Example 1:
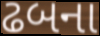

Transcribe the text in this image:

ઢબના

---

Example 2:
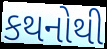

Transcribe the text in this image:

કથનોથી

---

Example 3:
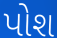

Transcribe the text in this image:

પોશ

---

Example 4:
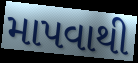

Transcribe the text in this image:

માપવાથી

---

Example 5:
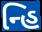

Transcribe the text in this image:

ન્હિ